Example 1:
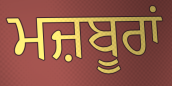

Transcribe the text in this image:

ਮਜ਼ਬੂਰਾਂ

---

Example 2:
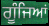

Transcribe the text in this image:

ਗੂੰਜਿਆਂ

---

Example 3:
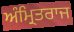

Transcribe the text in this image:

ਅੰਮ੍ਰਿਤਰਾਜ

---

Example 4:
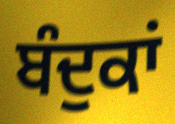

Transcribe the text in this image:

ਬੰਦੁਕਾਂ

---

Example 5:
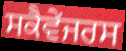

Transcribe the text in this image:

ਸਕੈਵੇਂਜਰਸ